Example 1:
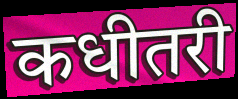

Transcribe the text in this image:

कधीतरी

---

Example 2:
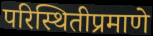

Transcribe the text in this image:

परिस्थितीप्रमाणे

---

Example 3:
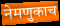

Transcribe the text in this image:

नेमणुकाच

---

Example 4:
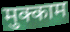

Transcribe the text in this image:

मुक्‍काम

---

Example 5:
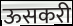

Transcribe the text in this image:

ऊसकरी